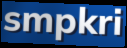
smpkri